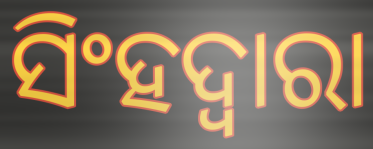
ସିଂହଦ୍ୱାରା